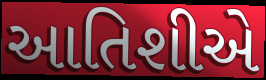
આતિશીએ